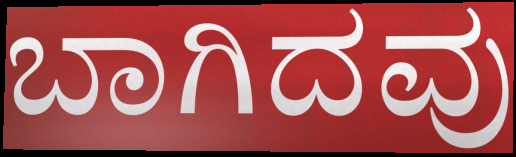
ಬಾಗಿದವು